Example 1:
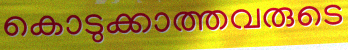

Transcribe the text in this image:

കൊടുക്കാത്തവരുടെ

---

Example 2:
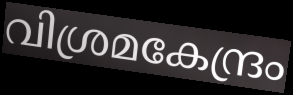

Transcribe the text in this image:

വിശ്രമകേന്ദ്രം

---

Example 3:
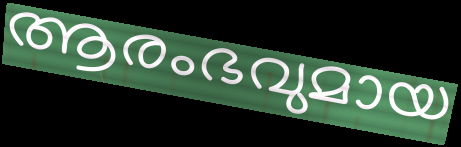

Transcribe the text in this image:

ആരംഭവുമായ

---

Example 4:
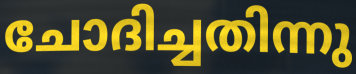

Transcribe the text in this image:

ചോദിച്ചതിന്നു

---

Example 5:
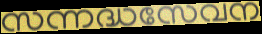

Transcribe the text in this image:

സന്നദ്ധസേവന